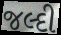
જલ્દી